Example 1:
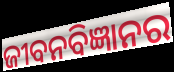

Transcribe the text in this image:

ଜୀବନବିଜ୍ଞାନର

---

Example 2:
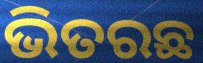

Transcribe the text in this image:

ଭିତରଛ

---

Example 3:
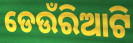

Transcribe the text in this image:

ଡେଉଁରିଆଟି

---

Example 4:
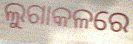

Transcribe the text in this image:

ଲୁଗାକଳରେ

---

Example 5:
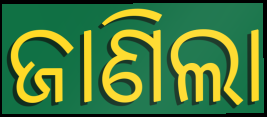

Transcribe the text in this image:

ଜାଣିଲା